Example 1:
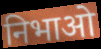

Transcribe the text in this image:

निभाओ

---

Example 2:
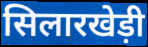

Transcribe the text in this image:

सिलारखेड़ी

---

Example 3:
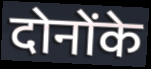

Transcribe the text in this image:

दोनोंके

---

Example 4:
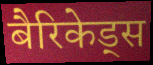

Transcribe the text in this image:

बैरिकेड्स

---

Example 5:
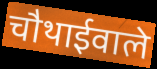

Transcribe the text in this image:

चौथाईवाले